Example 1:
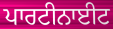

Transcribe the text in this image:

ਪਾਰਟੀਨਾਈਟ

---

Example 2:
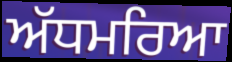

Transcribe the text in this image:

ਅੱਧਮਰਿਆ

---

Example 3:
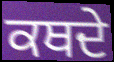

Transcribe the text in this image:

ਕਥਦੇ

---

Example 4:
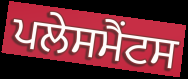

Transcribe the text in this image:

ਪਲੇਸਮੈਂਟਸ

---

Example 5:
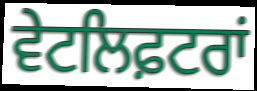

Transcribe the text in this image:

ਵੇਟਲਿਫ਼ਟਰਾਂ